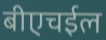
बीएचईल